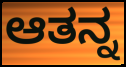
ಆತನ್ನ